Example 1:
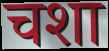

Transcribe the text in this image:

चशा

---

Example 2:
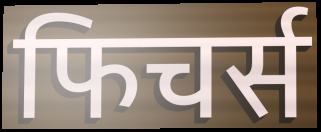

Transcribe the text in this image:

फिचर्स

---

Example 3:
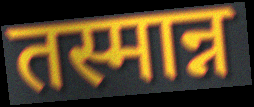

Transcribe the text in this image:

तस्मान्न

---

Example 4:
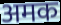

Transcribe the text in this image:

अमक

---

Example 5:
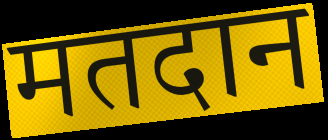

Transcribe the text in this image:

मतदान